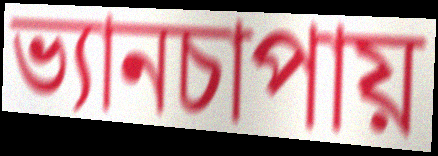
ভ্যানচাপায়